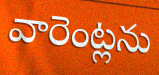
వారెంట్లను